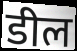
डील